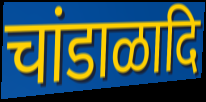
चांडाळादि